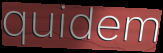
quidem